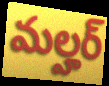
మల్హర్